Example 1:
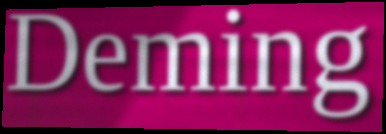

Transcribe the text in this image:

Deming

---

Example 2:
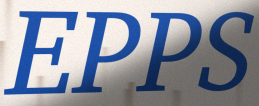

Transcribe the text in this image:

EPPS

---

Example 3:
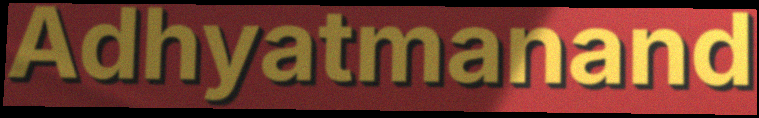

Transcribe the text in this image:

Adhyatmanand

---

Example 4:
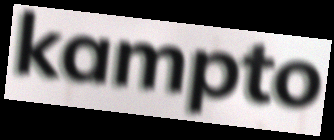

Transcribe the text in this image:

kampto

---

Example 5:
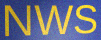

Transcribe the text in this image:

NWS